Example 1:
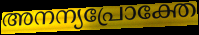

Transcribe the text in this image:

അനന്യപ്രോക്തേ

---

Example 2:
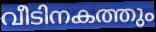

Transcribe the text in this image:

വീടിനകത്തും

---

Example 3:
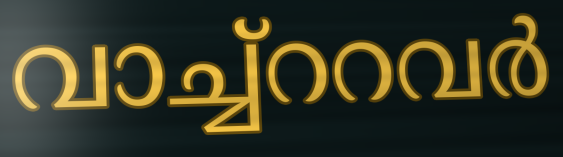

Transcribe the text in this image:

വാച്ച്ററവർ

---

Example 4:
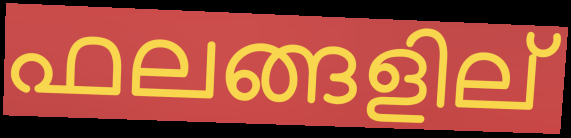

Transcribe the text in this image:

ഫലങ്ങളില്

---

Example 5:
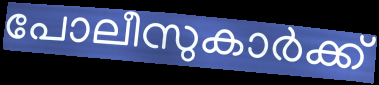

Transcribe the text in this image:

പോലീസുകാർക്ക്